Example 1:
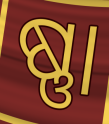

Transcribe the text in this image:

ଷ୍ଣା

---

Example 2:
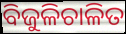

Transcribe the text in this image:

ବିଜୁଳିଚାଳିତ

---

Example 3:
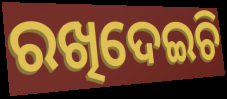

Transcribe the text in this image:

ରଖିଦେଇଚି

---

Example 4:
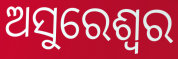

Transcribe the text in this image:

ଅସୁରେଶ୍ଵର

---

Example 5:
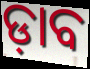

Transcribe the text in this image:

ଡ଼ାବ